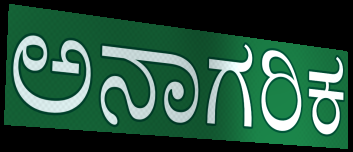
ಅನಾಗರಿಕ